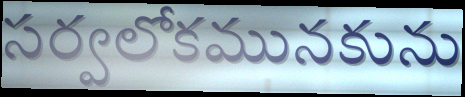
సర్వలోకమునకును